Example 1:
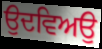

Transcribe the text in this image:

ਉਦਵਿਅਉ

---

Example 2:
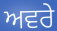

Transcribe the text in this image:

ਅਵਰੇ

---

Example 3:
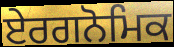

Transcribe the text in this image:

ਏਰਗਨੋਮਿਕ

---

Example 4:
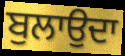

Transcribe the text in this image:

ਬੁਲਾਉਦਾ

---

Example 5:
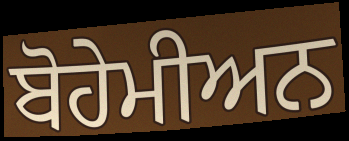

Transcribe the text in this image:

ਬੋਹੇਮੀਅਨ